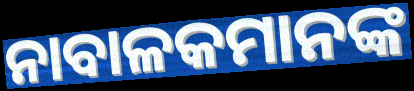
ନାବାଳକମାନଙ୍କ